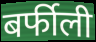
बर्फीली